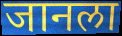
जानला